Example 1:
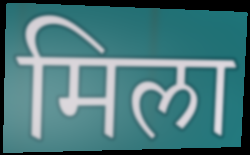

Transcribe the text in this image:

मिला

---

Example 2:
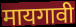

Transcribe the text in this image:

मायगावी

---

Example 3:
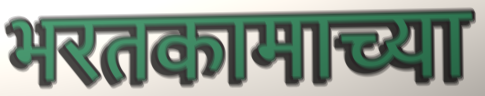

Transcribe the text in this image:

भरतकामाच्या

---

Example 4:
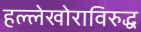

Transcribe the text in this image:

हल्लेखोराविरुद्ध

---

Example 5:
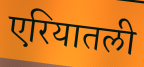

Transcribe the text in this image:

एरियातली